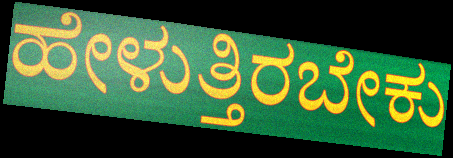
ಹೇಳುತ್ತಿರಬೇಕು